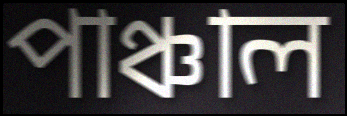
পাঞ্চাল